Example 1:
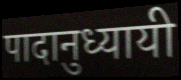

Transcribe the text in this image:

पादानुध्यायी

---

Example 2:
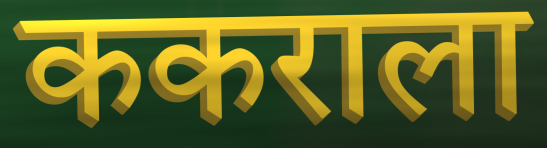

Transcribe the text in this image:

ककराला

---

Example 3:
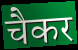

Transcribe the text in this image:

चैकर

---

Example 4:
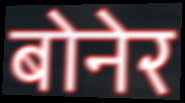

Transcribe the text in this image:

बोनेर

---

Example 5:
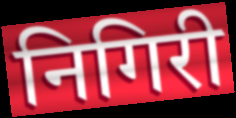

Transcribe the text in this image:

निगिरी